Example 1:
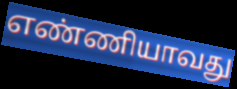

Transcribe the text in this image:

எண்ணியாவது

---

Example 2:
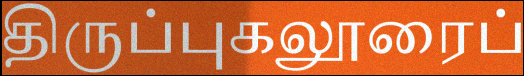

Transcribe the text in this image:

திருப்புகலூரைப்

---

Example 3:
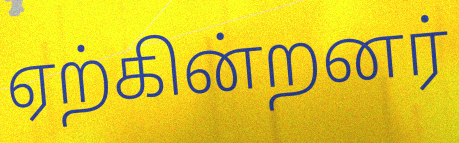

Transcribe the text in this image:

ஏற்கின்றனர்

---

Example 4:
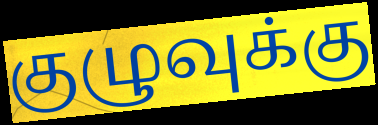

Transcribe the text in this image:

குழுவுக்கு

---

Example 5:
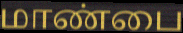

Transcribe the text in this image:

மாண்பை